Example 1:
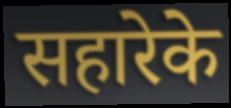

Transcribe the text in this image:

सहारेके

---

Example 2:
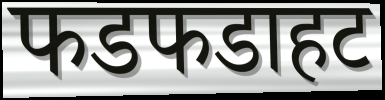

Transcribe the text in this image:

फडफडाहट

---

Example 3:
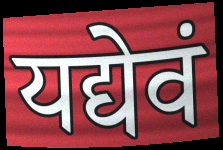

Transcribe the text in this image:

यद्येवं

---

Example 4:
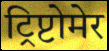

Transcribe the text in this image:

ट्रिप्टोमेर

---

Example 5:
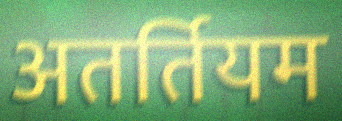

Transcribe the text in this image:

अतर्तियम